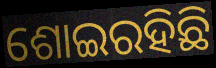
ଶୋଇରହିଛି